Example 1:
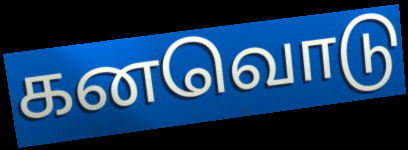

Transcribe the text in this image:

கனவொடு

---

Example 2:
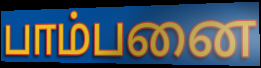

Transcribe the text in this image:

பாம்பனை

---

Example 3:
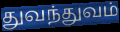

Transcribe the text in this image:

துவந்துவம்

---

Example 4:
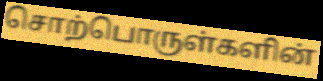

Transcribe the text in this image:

சொற்பொருள்களின்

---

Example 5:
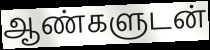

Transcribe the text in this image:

ஆண்களுடன்